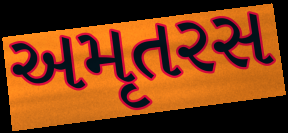
અમૃતરસ